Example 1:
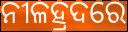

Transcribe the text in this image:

ନୀଳହ୍ରଦରେ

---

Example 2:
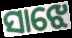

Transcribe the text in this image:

ସାଝେ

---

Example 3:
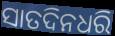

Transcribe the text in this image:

ସାତଦିନଧରି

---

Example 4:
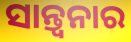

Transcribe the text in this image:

ସାନ୍ତ୍ୱନାର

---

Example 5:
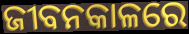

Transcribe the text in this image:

ଜୀବନକାଳରେ